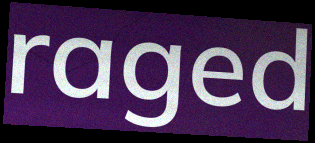
raged